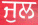
ਜੁਲ